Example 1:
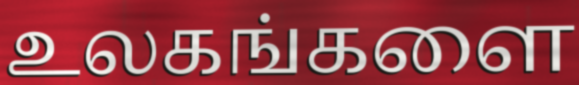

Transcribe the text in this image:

உலகங்களை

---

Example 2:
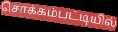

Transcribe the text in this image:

சொக்கம்பட்டியில்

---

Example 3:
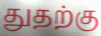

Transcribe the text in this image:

துதற்கு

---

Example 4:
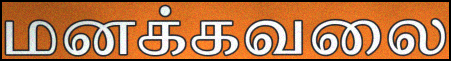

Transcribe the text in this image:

மனக்கவலை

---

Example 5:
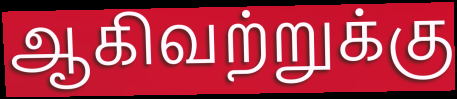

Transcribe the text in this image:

ஆகிவற்றுக்கு